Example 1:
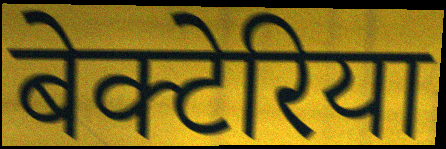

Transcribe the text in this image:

बेक्टेरिया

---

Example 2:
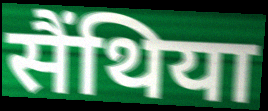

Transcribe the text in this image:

सैंथिया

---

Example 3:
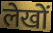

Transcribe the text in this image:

लेखों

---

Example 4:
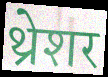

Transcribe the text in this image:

थ्रेशर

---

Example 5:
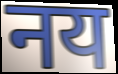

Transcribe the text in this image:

नय